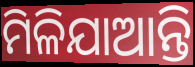
ମିଳିଯାଆନ୍ତି